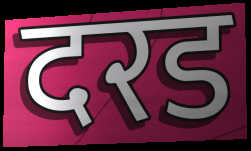
दरड